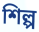
শিল্প